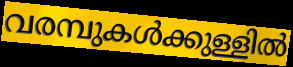
വരമ്പുകൾക്കുള്ളിൽ